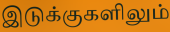
இடுக்குகளிலும்